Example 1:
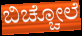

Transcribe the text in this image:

ಬಿಚ್ಚೋಲೆ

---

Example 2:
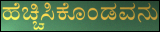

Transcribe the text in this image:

ಹೆಚ್ಚಿಸಿಕೊಂಡವನು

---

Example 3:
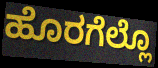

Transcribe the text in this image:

ಹೊರಗೆಲ್ಲೊ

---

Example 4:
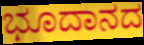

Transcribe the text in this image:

ಭೂದಾನದ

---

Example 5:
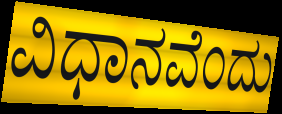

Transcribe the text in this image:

ವಿಧಾನವೆಂದು